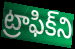
ట్రాఫిక్‌ని